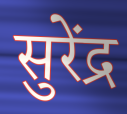
सुरेंद्र